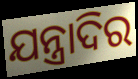
ଯନ୍ତ୍ରାଦିର